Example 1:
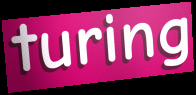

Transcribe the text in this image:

turing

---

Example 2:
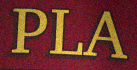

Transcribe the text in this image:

PLA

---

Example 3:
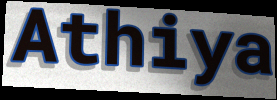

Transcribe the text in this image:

Athiya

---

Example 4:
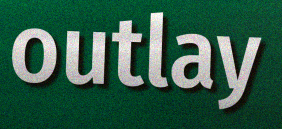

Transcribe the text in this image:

outlay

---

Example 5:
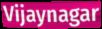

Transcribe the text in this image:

Vijaynagar